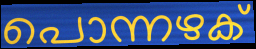
പൊന്നഴക്